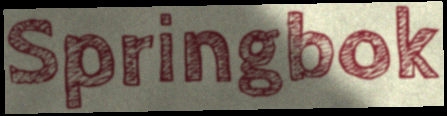
Springbok